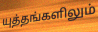
யுத்தங்களிலும்